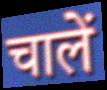
चालें